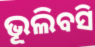
ଭୂଲିବସି